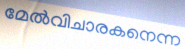
മേൽവിചാരകനെന്ന